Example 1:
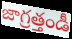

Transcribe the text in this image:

జాగ్రత్తండీ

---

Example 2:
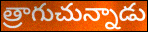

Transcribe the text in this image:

త్రాగుచున్నాడు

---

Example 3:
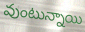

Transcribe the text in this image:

వుంటున్నాయి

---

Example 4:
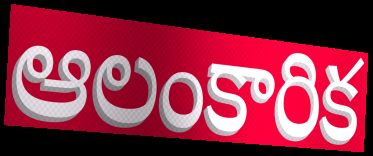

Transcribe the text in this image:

ఆలంకారిక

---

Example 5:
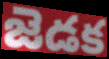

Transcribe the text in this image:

జెడక